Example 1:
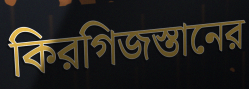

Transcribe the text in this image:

কিরগিজস্তানের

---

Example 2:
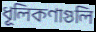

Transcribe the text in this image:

ধূলিকণাগুলি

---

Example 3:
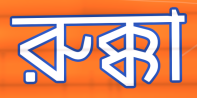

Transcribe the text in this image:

রুক্কা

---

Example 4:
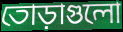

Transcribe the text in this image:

তোড়াগুলো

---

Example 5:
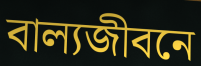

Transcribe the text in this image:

বাল্যজীবনে